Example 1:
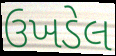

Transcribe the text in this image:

ઉખડેલ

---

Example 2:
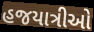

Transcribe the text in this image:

હજયાત્રીઓ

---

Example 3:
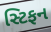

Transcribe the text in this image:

સ્ટિફન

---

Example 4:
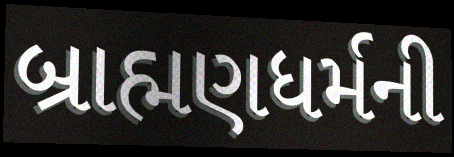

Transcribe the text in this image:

બ્રાહ્મણધર્મની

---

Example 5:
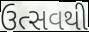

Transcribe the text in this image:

ઉત્સવથી